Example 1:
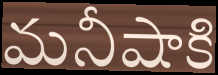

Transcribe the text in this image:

మనీషాకి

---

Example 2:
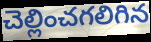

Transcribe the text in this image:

చెల్లించగలిగిన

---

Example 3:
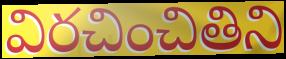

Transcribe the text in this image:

విరచించితిని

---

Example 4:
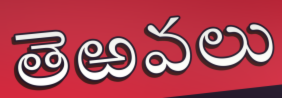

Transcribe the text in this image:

తెఱవలు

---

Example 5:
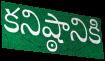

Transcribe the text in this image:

కనిష్ఠానికి